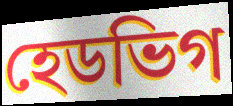
হেডভিগ